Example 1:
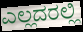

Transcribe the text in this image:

ಎಲ್ಲದರಲ್ಲಿ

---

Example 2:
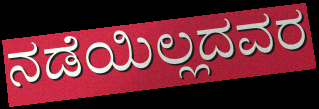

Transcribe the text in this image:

ನಡೆಯಿಲ್ಲದವರ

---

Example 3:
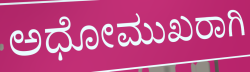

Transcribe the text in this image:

ಅಧೋಮುಖರಾಗಿ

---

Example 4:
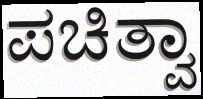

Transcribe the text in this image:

ಪಚಿತ್ವಾ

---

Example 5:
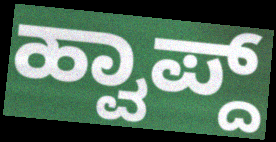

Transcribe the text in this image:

ಹ್ವಾಪ್ದ್